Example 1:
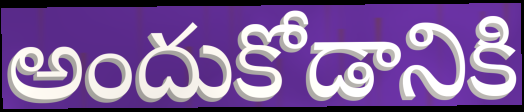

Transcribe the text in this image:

అందుకోడానికి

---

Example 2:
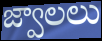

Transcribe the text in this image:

జ్వాలలు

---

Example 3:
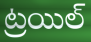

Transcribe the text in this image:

ట్రయిల్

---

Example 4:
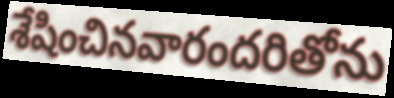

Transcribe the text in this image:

శేషించినవారందరితోను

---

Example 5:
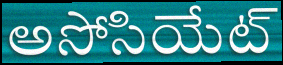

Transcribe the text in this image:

అసోసియేట్